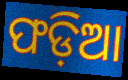
ଫଡ଼ିଆ